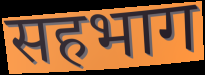
सहभाग